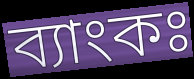
ব্যাংকঃ